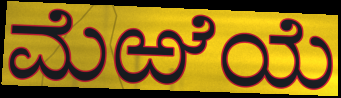
ಮೆಱೆಯೆ